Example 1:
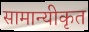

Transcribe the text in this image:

सामान्यीकृत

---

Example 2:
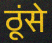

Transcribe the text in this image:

ठूंसे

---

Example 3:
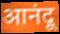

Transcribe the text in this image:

आनंदू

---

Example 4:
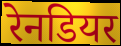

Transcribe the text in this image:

रेनडियर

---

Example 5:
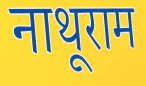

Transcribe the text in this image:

नाथूराम